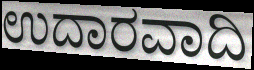
ಉದಾರವಾದಿ